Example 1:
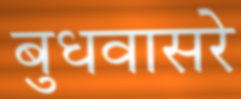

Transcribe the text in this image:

बुधवासरे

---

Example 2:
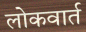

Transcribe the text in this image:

लोकवार्त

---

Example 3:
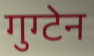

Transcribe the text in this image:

गुग्टेन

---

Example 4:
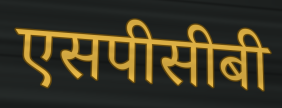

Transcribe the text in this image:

एसपीसीबी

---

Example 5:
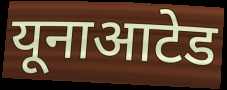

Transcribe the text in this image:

यूनाआटेड